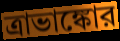
ত্রাভাঙ্কোর